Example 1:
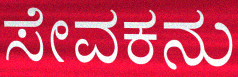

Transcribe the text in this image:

ಸೇವಕನು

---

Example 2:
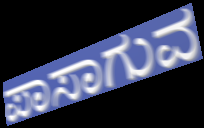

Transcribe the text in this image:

ಪಾಸಾಗುವ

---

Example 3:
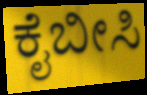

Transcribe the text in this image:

ಕೈಬೀಸಿ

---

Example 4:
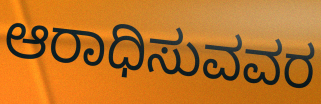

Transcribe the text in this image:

ಆರಾಧಿಸುವವರ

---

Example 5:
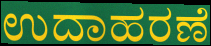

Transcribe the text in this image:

ಉದಾಹರಣೆ